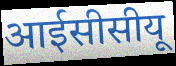
आईसीसीयू